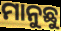
ମାନୁଛୁ